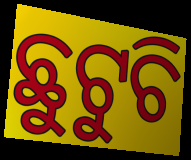
ଛୁଟୁଚି